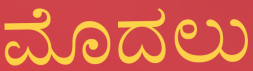
ಮೊದಲು